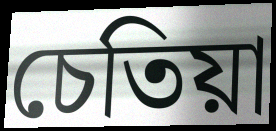
চেতিয়া